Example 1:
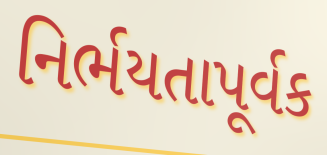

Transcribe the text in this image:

નિર્ભયતાપૂર્વક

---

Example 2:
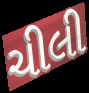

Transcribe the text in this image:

ચીલી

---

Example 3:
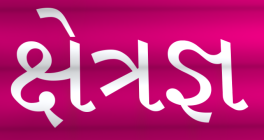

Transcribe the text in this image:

ક્ષેત્રજ્ઞ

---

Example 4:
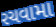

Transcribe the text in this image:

રચવામા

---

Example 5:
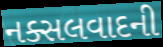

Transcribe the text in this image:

નક્સલવાદની